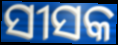
ସୀସକ